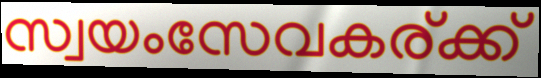
സ്വയംസേവകര്ക്ക്